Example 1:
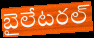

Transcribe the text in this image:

బైలేటరల్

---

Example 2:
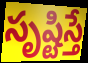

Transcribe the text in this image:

సృష్టిస్తే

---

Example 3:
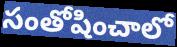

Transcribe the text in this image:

సంతోషించాలో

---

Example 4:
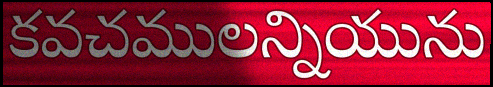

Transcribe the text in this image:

కవచములన్నియును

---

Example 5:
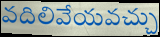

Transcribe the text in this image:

వదిలివేయవచ్చు